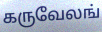
கருவேலங்